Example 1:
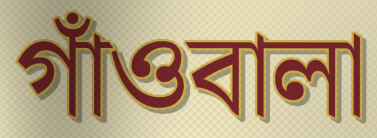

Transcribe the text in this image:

গাঁওবালা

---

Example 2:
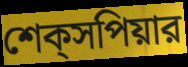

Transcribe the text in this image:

শেক্‌সপিয়ার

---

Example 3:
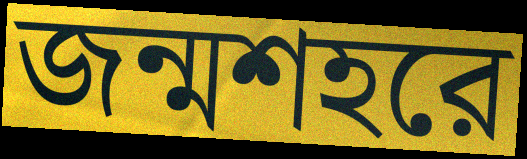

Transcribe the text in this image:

জন্মশহরে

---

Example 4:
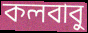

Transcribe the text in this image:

কলবাবু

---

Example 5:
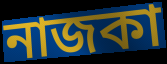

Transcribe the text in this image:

নাজকা